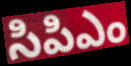
సిపిఎం